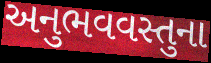
અનુભવવસ્તુના